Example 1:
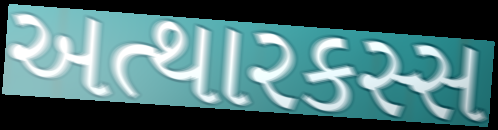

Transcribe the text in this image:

અત્થારકસ્સ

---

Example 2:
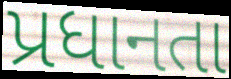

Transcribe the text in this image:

પ્રધાનતા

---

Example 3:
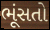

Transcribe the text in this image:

ભૂંસતો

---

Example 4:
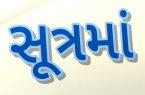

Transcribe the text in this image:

સૂત્રમાં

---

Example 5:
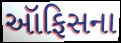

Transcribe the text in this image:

ઑફિસના